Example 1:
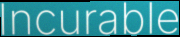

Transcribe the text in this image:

Incurable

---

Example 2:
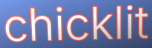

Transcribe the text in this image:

chicklit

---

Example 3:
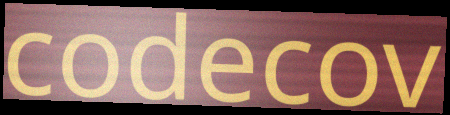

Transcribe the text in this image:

codecov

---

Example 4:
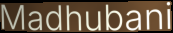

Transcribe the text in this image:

Madhubani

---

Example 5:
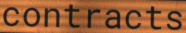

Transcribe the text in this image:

contracts